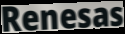
Renesas